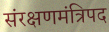
संरक्षणमंत्रिपद